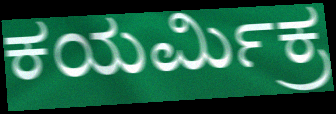
ಕಯರ್ಮಿಕ್ರ